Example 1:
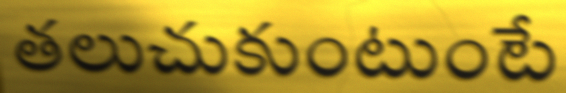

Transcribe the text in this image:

తలుచుకుంటుంటే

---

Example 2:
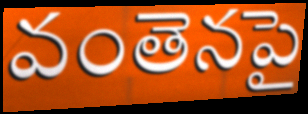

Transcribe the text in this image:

వంతెనపై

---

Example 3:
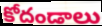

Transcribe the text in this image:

కోదండాలు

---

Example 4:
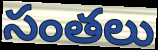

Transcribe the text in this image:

సంతలు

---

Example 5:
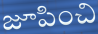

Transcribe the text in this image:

జూపించి